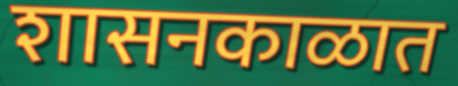
शासनकाळात